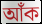
আঁক